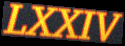
LXXIV